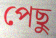
পেছু